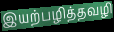
இயற்பழித்தவழி